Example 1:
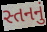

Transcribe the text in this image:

સ્તનનું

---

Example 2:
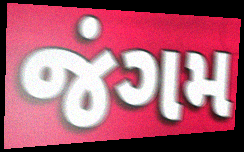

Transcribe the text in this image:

જંગમ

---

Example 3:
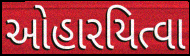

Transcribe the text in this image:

ઓહારયિત્વા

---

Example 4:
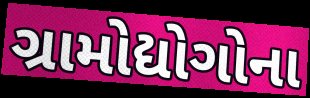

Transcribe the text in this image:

ગ્રામોદ્યોગોના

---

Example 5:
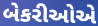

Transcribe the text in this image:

બેકરીઓએ